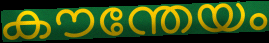
കൗന്തേയം